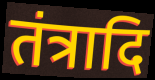
तंत्रादि